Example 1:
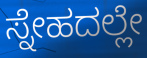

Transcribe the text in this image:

ಸ್ನೇಹದಲ್ಲೇ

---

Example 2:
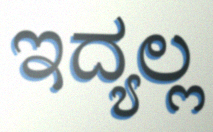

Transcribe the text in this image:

ಇದ್ಯಲ್ಲ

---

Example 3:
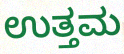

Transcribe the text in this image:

ಉತ್ತಮ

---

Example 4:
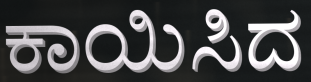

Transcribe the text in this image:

ಕಾಯಿಸಿದ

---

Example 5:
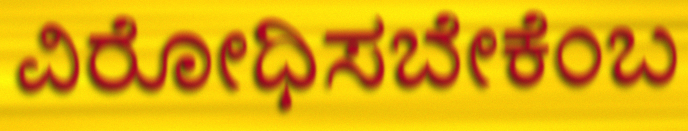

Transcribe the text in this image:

ವಿರೋಧಿಸಬೇಕೆಂಬ